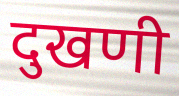
दुखणी